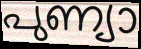
പുണ്യാ